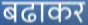
बढाकर